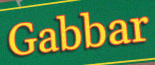
Gabbar